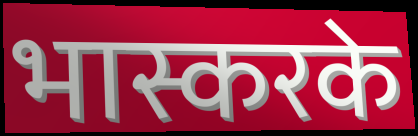
भास्करके